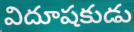
విదూషకుడు